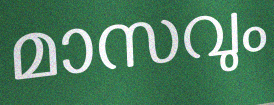
മാസവും